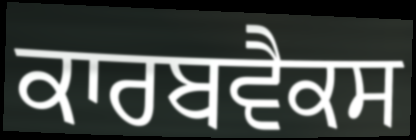
ਕਾਰਬਵੈਕਸ